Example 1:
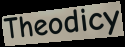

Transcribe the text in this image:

Theodicy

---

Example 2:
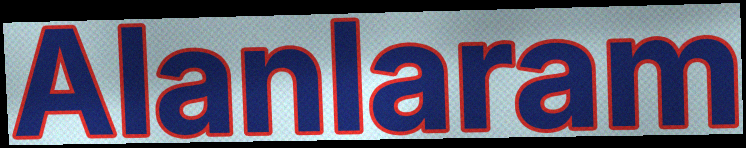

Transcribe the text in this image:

Alanlaram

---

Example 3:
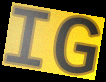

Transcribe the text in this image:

IG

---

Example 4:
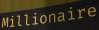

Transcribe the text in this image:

Millionaire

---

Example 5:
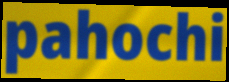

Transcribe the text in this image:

pahochi